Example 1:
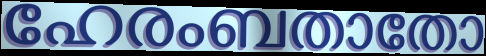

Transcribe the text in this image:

ഹേരംബതാതോ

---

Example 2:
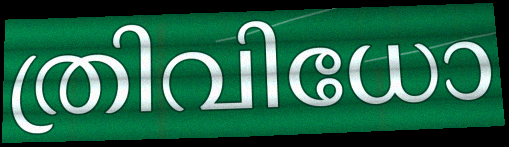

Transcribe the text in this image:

ത്രിവിധോ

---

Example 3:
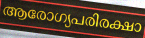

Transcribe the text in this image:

ആരോഗ്യപരിരക്ഷാ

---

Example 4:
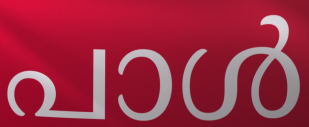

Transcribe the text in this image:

പാൾ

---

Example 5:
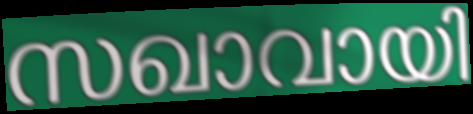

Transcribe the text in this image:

സഖാവായി